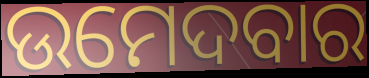
ଉମେଦବାର